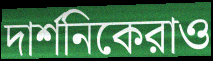
দার্শনিকেরাও